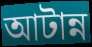
আটান্ন